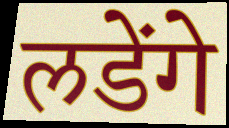
लडेंगे